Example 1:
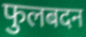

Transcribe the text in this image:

फुलबदन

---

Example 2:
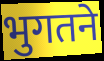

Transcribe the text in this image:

भुगतने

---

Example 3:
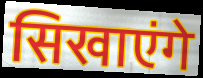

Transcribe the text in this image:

सिखाएंगे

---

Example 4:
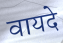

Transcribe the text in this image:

वायदे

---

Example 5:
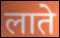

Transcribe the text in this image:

लाते